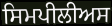
ਸਿਮਪੀਲੀਅਸ